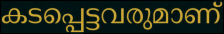
കടപ്പെട്ടവരുമാണ്